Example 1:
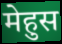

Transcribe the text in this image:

मेहुस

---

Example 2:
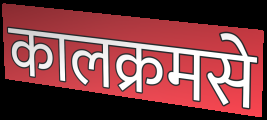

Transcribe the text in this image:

कालक्रमसे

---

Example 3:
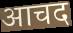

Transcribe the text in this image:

आचद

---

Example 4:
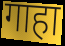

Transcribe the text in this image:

गाहा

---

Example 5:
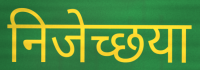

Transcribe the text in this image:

निजेच्छया